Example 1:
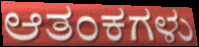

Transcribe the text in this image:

ಆತಂಕಗಳು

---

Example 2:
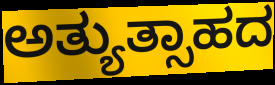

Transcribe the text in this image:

ಅತ್ಯುತ್ಸಾಹದ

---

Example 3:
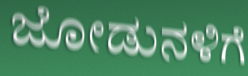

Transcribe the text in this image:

ಜೋಡುನಳಿಗೆ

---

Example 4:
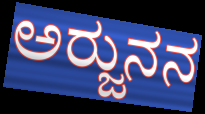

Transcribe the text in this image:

ಅರ್‍ಜುನನ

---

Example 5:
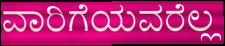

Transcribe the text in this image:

ವಾರಿಗೆಯವರೆಲ್ಲ